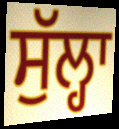
ਸੁੱਲ੍ਹਾ